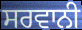
ਸਰਵਾਨੀ